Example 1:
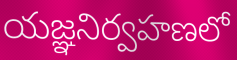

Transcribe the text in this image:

యజ్ఞనిర్వహణలో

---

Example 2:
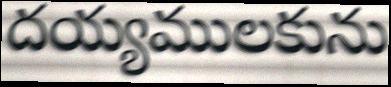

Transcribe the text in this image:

దయ్యములకును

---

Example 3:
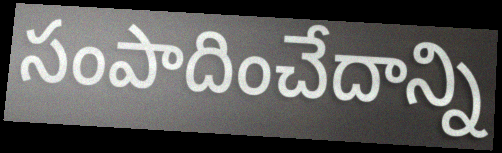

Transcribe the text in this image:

సంపాదించేదాన్ని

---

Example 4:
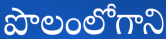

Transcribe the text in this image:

పొలంలోగాని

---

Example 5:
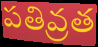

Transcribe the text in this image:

పతివ్రత